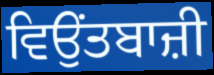
ਵਿਉਂਤਬਾਜ਼ੀ